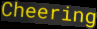
Cheering